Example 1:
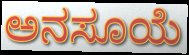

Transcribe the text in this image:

ಅನಸೂಯೆ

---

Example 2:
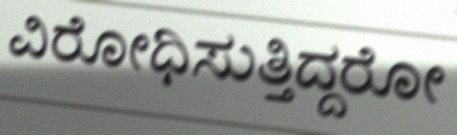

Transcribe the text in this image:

ವಿರೋಧಿಸುತ್ತಿದ್ದರೋ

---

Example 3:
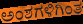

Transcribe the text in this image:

ಅಂಶಗಳಿಗಿಂತ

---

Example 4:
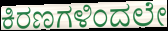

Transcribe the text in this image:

ಕಿರಣಗಳಿಂದಲೇ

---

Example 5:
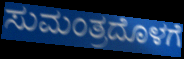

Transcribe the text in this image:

ಸುಮಂತ್ರದೊಳಗೆ